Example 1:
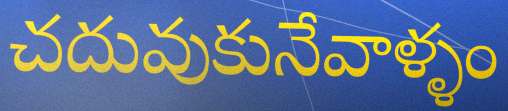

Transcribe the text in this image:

చదువుకునేవాళ్ళం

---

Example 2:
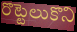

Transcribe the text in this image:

రొట్టెలుకొని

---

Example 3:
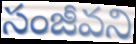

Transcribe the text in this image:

సంజీవని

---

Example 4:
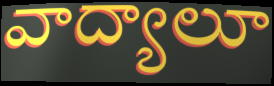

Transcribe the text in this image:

వాద్యాలూ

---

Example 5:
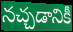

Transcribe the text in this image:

నచ్చడానికీ